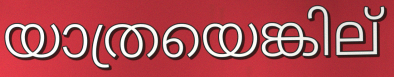
യാത്രയെങ്കില്